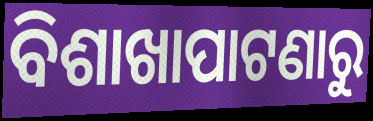
ବିଶାଖାପାଟଣାରୁ